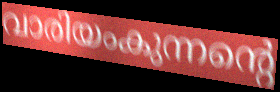
വാരിയംകുന്നന്റെ